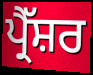
ਪ੍ਰੈੱਸ਼ਰ